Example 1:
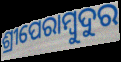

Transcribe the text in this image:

ଶ୍ରୀପେରାମ୍ବୁଦୁର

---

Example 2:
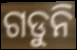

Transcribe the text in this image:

ଗଡୁନି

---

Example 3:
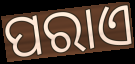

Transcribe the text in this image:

ପରାଏ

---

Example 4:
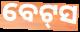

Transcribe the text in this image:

ବେଟ୍‍ସ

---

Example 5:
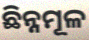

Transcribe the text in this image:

ଛିନ୍ନମୂଳ